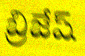
బ్రిజేష్